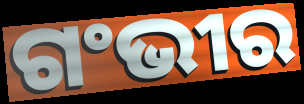
ଗଂଭୀର